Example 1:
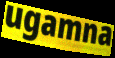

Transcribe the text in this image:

ugamna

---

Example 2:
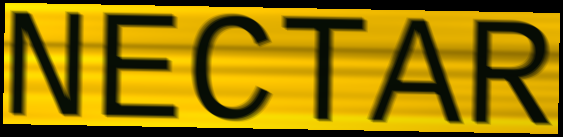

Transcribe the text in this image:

NECTAR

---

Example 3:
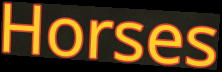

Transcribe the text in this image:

Horses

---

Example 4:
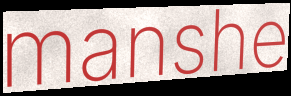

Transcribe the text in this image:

manshe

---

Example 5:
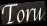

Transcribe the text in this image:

Toru